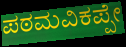
ಪಠಮವಿಕಪ್ಪೇ